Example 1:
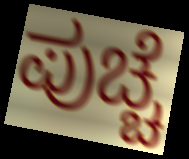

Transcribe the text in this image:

ಪುಚ್ಚೆ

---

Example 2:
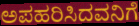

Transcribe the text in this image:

ಅಪಹರಿಸಿದವನಿಗೆ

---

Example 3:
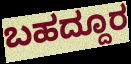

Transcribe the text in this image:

ಬಹದ್ದೂರ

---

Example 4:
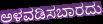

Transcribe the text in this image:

ಅಳವಡಿಸಬಾರದು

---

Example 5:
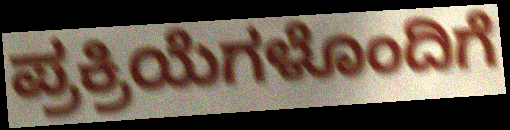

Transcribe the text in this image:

ಪ್ರಕ್ರಿಯೆಗಳೊಂದಿಗೆ